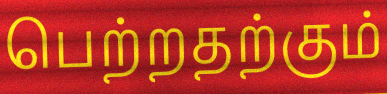
பெற்றதற்கும்